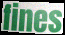
fines